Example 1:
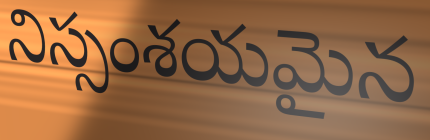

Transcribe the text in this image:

నిస్సంశయమైన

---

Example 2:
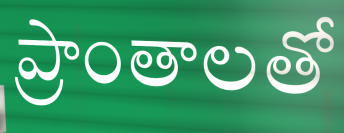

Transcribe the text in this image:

ప్రాంతాలతో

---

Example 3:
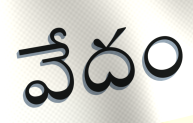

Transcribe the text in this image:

వేదం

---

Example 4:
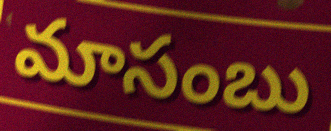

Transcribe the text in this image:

మాసంబు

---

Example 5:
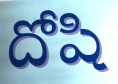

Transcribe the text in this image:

దోషి